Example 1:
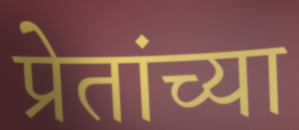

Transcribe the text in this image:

प्रेतांच्या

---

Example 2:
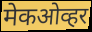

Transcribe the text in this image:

मेकओव्हर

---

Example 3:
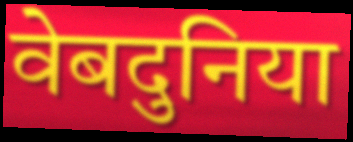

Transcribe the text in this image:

वेबदुनिया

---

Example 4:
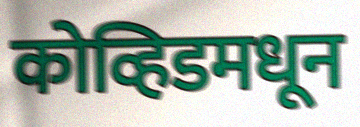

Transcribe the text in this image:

कोव्हिडमधून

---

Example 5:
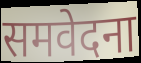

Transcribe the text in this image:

समवेदना